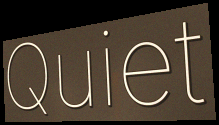
Quiet